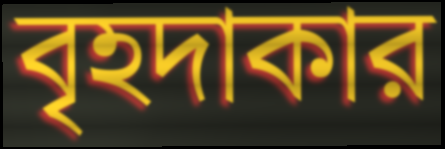
বৃহদাকার